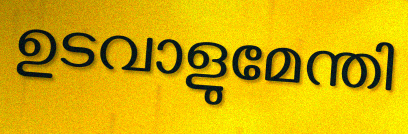
ഉടവാളുമേന്തി